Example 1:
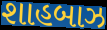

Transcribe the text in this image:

શાહબાઝ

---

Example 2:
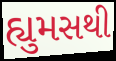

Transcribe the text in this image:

હ્યુમસથી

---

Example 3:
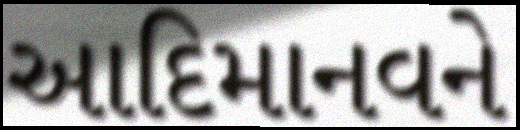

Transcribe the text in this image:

આદિમાનવને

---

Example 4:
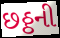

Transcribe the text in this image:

છઠ્ઠની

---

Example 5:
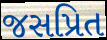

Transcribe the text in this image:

જસપ્રિત